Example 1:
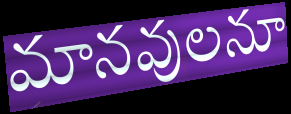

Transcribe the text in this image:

మానవులనూ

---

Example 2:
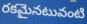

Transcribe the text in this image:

రకమైనటువంటి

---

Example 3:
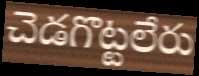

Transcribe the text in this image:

చెడగొట్టలేరు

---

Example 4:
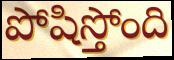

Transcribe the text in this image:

పోషిస్తోంది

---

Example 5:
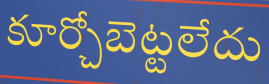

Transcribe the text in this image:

కూర్చోబెట్టలేదు